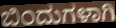
ಬಿಂದುಗಳಾಗಿ